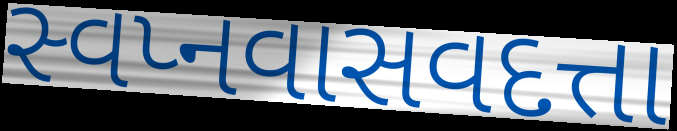
સ્વપ્નવાસવદત્તા